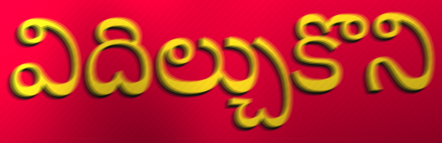
విదిల్చుకొని